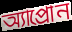
অ্যাপ্রোন